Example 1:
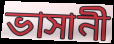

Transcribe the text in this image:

ভাসানী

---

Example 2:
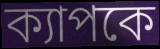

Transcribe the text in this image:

ক্যাপকে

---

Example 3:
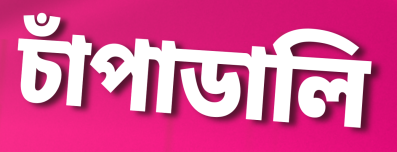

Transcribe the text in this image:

চাঁপাডালি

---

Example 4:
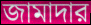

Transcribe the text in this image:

জামাদার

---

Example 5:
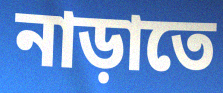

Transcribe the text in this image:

নাড়াতে